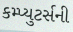
કમ્પ્યુટર્સની